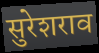
सुरेशराव